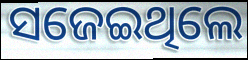
ସଜେଇଥିଲେ